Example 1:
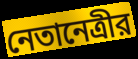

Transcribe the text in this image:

নেতানেত্রীর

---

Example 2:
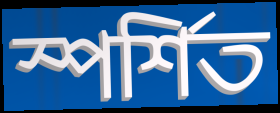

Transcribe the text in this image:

স্পর্শিত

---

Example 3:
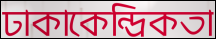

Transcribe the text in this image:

ঢাকাকেন্দ্রিকতা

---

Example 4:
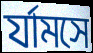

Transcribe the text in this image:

র্যামসে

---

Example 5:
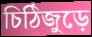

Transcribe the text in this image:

চিঠিজুড়ে